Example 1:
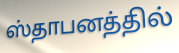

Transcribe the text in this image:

ஸ்தாபனத்தில்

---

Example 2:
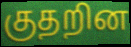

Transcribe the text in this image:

குதறின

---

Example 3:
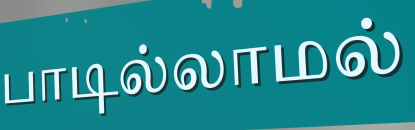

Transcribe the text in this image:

பாடில்லாமல்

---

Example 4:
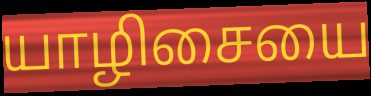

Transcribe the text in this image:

யாழிசையை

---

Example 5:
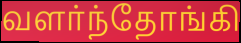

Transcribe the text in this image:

வளர்ந்தோங்கி